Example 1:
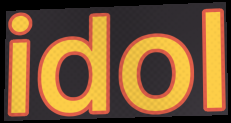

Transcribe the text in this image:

idol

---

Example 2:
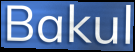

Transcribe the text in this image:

Bakul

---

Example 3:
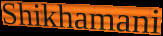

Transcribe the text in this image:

Shikhamani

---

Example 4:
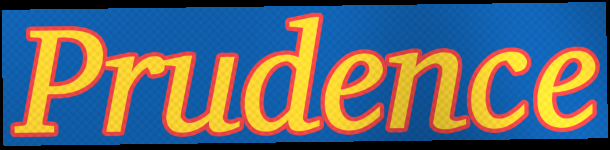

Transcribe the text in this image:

Prudence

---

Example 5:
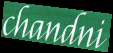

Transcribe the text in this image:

chandni